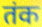
तंक